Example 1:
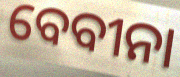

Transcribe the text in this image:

ବେବୀନା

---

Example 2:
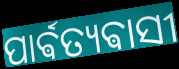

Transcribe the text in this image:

ପାର୍ଵତ୍ୟଵାସୀ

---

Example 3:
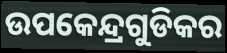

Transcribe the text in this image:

ଉପକେନ୍ଦ୍ରଗୁଡିକର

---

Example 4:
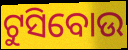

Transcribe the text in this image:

ଟୁସିବୋଉ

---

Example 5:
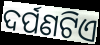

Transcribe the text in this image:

ଦର୍ପଣଟିଏ